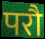
परौ